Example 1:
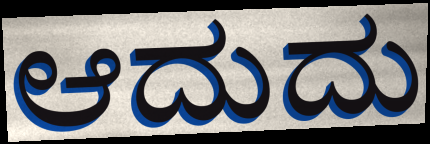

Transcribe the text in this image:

ಆದುದು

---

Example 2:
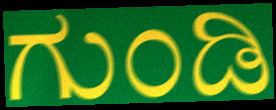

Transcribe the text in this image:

ಗುಂಡಿ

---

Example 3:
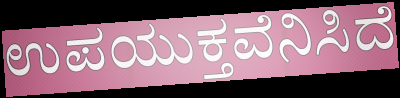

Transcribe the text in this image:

ಉಪಯುಕ್ತವೆನಿಸಿದೆ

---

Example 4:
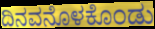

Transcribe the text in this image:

ದಿನವನೊಳಕೊಂಡು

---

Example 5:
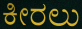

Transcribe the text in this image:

ಕೀರಲು